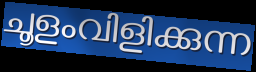
ചൂളംവിളിക്കുന്ന